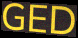
GED